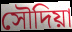
সৌদিয়া